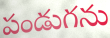
పండుగను